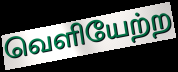
வெளியேற்ற